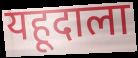
यहूदाला